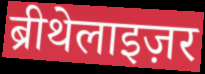
ब्रीथेलाइज़र